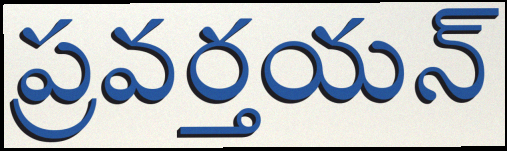
ప్రవర్తయన్